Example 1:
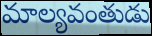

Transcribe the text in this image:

మాల్యవంతుడు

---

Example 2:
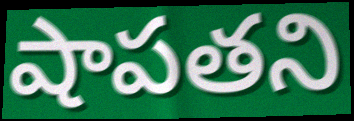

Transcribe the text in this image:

షాపతని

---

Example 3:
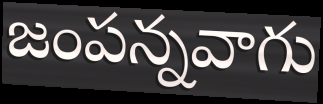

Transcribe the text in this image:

జంపన్నవాగు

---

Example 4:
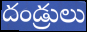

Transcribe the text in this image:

దండ్రులు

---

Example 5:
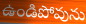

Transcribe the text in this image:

ఉండిపోవును